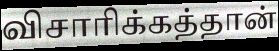
விசாரிக்கத்தான்